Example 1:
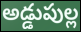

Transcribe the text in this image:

అడ్డుపుల్ల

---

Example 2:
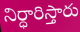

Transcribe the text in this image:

నిర్ధారిస్తారు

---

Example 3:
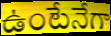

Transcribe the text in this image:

ఉంటేనేగా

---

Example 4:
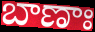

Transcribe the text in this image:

బాణాః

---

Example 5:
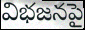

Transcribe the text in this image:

విభజనపై